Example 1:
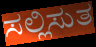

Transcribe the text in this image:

ಸಲ್ಲಿಸುತ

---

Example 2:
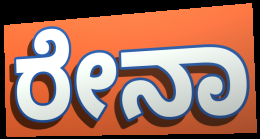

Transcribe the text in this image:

ರೇನಾ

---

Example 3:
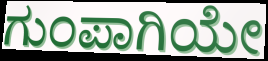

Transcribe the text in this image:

ಗುಂಪಾಗಿಯೇ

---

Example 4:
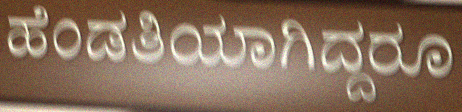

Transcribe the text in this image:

ಹೆಂಡತಿಯಾಗಿದ್ದರೂ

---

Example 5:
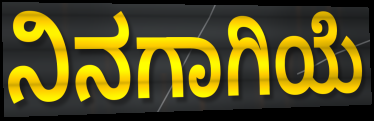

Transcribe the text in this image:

ನಿನಗಾಗಿಯೆ